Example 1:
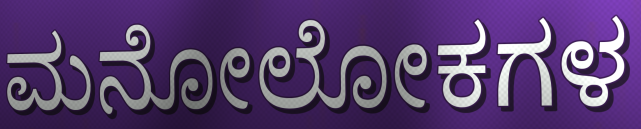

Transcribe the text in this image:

ಮನೋಲೋಕಗಳ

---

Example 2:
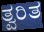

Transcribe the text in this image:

ತ್ವರಿತ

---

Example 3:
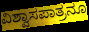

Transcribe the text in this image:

ವಿಶ್ವಾಸಪಾತ್ರನೂ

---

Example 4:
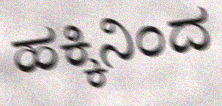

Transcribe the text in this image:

ಹಕ್ಕಿನಿಂದ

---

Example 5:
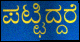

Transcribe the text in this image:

ಪಟ್ಟಿದ್ದರೆ